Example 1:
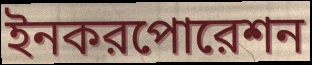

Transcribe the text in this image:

ইনকরপোরেশন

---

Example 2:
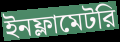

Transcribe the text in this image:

ইনফ্লামেটরি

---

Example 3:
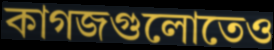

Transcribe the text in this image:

কাগজগুলোতেও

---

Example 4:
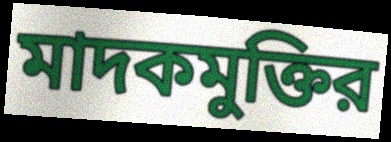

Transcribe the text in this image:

মাদকমুক্তির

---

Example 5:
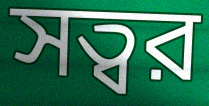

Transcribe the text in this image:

সত্বর